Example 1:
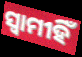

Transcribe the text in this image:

ସ୍ଵାମୀହିଁ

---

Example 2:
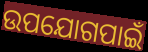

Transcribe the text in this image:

ଉପଯୋଗପାଇଁ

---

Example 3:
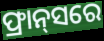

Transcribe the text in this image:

ଫ୍ରାନ୍‌ସରେ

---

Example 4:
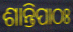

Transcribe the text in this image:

ଶାନ୍ତିପାଠଃ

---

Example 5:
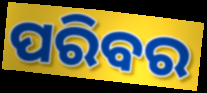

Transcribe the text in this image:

ପରିବର